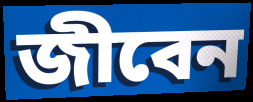
জীবেন